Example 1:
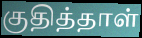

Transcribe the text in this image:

குதித்தாள்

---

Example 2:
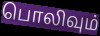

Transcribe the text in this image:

பொலிவும்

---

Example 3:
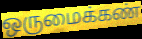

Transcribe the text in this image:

ஒருமைக்கண்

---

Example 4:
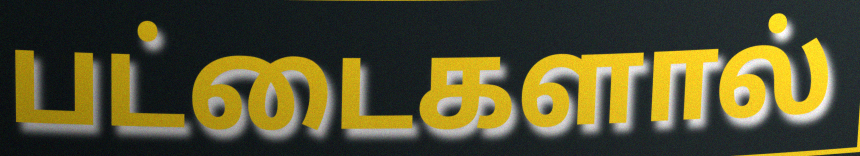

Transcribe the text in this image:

பட்டைகளால்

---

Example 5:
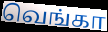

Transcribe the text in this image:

வெங்கா